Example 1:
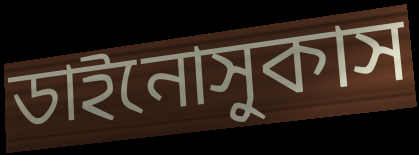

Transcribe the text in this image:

ডাইনোসুকাস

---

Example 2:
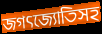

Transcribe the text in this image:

জগৎজ্যোতিসহ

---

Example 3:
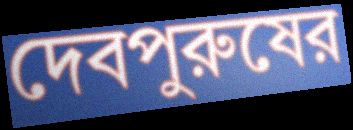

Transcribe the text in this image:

দেবপুরুষের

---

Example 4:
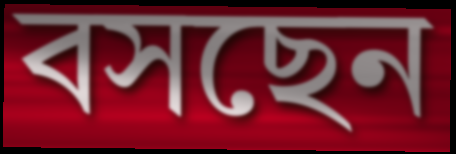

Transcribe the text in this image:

বসছেন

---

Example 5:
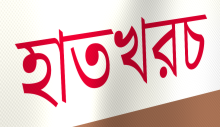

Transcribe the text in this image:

হাতখরচ